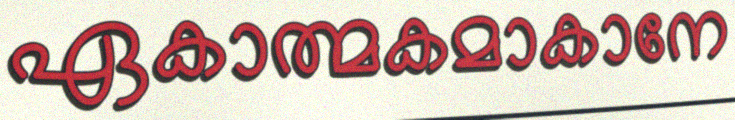
ഏകാത്മകമാകാനേ